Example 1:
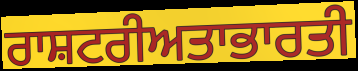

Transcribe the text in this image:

ਰਾਸ਼ਟਰੀਅਤਾਭਾਰਤੀ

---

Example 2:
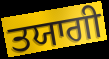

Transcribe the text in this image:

ਤਯਾਗੀ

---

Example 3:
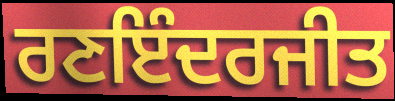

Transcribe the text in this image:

ਰਣਇੰਦਰਜੀਤ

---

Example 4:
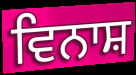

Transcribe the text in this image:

ਵਿਨਾਸ਼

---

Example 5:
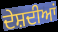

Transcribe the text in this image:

ਦੇਸ਼ਦੀਆਂ